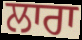
ਲਾਰਾ